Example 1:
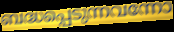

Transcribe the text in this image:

ബദ്ധപ്പെടുന്നവന്നോ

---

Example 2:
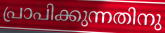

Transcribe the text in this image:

പ്രാപിക്കുന്നതിനു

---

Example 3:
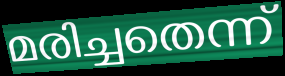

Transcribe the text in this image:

മരിച്ചതെന്ന്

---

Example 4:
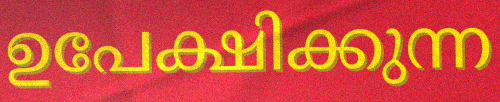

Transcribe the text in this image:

ഉപേക്ഷിക്കുന്ന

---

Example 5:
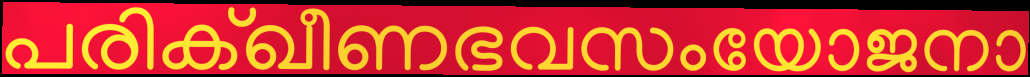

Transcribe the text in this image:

പരിക്ഖീണഭവസംയോജനാ